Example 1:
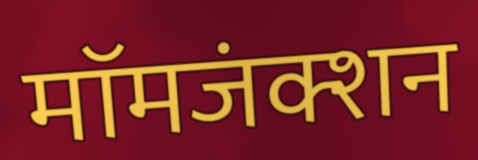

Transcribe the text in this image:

मॉमजंक्शन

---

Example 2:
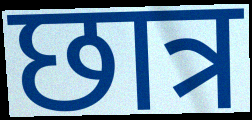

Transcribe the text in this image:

छात्र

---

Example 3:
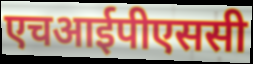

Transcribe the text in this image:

एचआईपीएससी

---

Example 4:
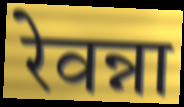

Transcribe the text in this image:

रेवन्ना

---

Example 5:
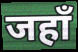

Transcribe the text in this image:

जहाँ